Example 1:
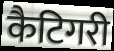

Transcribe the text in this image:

कैटिगरी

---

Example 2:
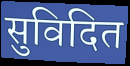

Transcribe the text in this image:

सुविदित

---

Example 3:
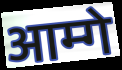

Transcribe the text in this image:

आम्गे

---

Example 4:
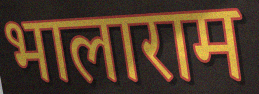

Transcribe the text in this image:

भालाराम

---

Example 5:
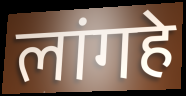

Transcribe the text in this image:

लांगहे